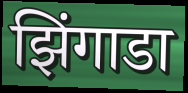
झिंगाडा